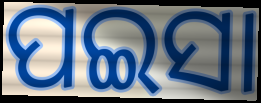
ପଇସା